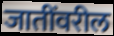
जातींवरील